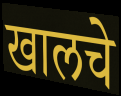
खालचे